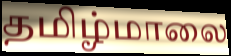
தமிழ்மாலை